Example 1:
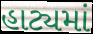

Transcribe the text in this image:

હાટ્યમાં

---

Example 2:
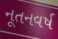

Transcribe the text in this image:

નૂતનવર્ષ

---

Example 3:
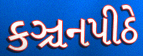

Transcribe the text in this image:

કઞ્ચનપીઠે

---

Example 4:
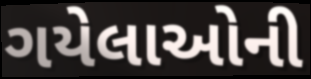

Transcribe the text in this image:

ગયેલાઓની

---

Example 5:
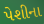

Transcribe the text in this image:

પેશીના